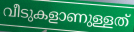
വീടുകളാണുള്ളത്